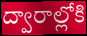
ద్వారాల్లోకి